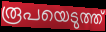
രൂപയെടുത്ത്